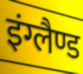
इंग्लैण्ड